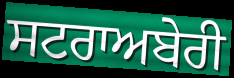
ਸਟਰਾਅਬੇਰੀ